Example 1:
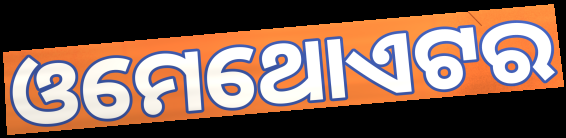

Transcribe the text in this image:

ଓମେଥୋଏଟର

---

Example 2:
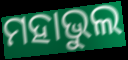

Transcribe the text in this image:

ମହାଭୁଲ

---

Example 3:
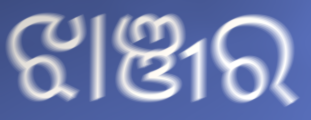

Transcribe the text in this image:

ଝାଞ୍ଜର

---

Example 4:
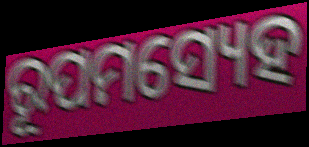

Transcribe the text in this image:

ରୂପମସ୍ୟେହ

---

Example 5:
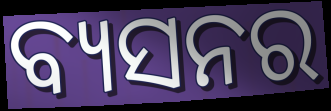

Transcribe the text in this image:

ବ୍ୟସନର